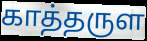
காத்தருள